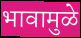
भावामुळे